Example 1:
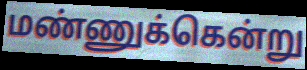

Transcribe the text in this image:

மண்ணுக்கென்று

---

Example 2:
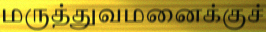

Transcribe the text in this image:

மருத்துவமனைக்குச்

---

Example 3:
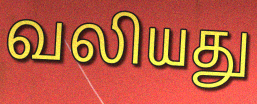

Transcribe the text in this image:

வலியது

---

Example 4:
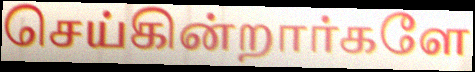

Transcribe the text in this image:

செய்கின்றார்களே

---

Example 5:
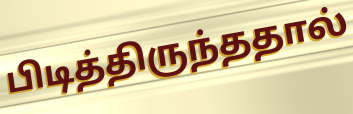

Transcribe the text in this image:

பிடித்திருந்ததால்